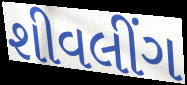
શીવલીંગ